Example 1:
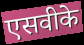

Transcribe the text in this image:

एसवीके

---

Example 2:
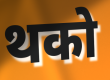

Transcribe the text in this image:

थको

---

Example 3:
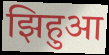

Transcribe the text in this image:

झिहुआ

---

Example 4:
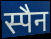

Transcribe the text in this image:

स्पैन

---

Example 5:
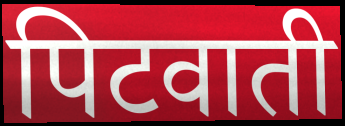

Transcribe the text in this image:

पिटवाती